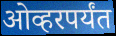
ओव्हरपर्यंत